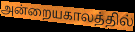
அன்றையகாலத்தில்